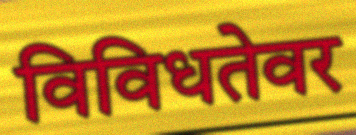
विविधतेवर